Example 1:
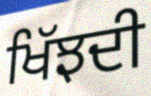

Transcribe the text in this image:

ਖਿੱਝਦੀ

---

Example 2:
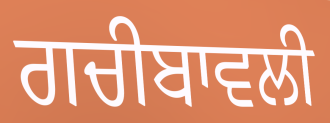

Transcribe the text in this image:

ਗਚੀਬਾਵਲੀ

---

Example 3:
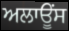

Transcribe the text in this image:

ਅਲਾਊੰਸ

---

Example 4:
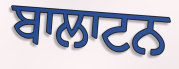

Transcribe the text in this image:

ਬਾਲਾਟਨ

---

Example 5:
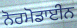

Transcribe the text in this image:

ਨੋਰਮੋਡਾਈਨ